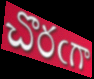
చొరఁగా